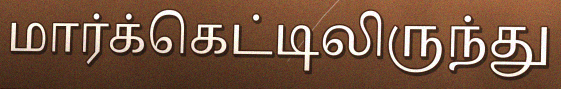
மார்க்கெட்டிலிருந்து